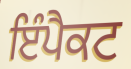
ਇੰਪੈਕਟ